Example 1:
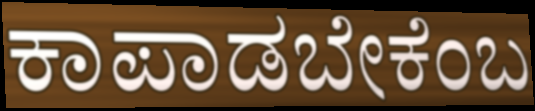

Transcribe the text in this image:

ಕಾಪಾಡಬೇಕೆಂಬ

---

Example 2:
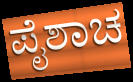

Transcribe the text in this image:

ಪೈಶಾಚ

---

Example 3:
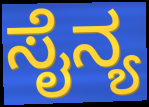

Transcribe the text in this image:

ಸೈನ್ಯ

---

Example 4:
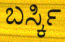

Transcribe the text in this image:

ಬರ್ಸ್ಕಿ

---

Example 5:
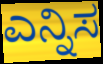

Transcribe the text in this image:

ಎನ್ನಿಸ